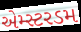
એમ્સ્ટરડમ